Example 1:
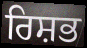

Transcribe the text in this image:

ਰਿਸ਼ਭ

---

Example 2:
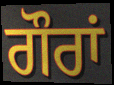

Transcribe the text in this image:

ਗੌਰਾਂ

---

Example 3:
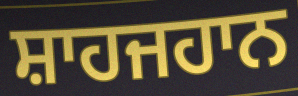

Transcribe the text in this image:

ਸ਼ਾਹਜਹਾਨ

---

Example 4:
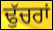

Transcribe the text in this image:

ਢੁੱਚਰਾਂ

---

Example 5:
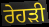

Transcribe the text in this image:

ਰੇਹੜੀ